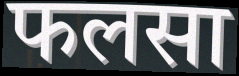
फलसा